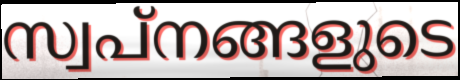
സ്വപ്നങ്ങളുടെ